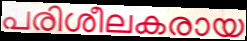
പരിശീലകരായ